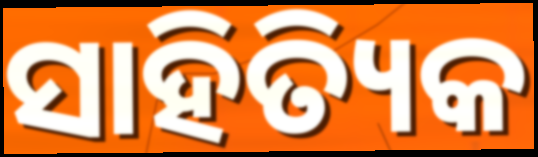
ସାହିତ୍ୟିକ